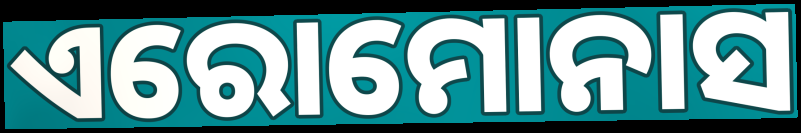
ଏରୋମୋନାସ